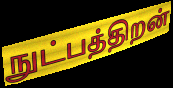
நுட்பத்திறன்